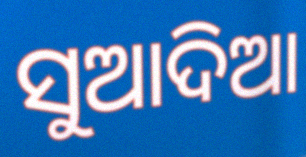
ସୁଆଦିଆ